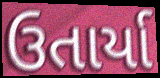
ઉતાર્યા